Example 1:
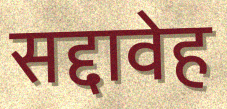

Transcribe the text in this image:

सद्दावेह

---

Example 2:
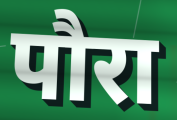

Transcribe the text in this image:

पौरा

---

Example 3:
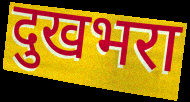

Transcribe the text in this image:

दुखभरा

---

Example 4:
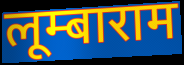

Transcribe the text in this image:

लूम्बाराम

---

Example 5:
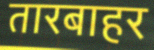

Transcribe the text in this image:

तारबाहर